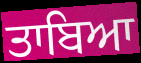
ਤਾਬਿਆ